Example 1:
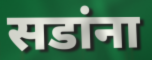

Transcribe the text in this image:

सडांना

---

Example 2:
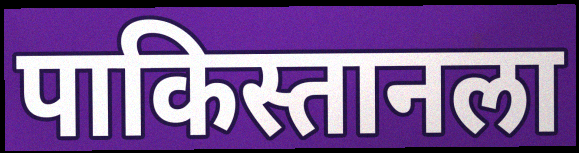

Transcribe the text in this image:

पाकिस्तानला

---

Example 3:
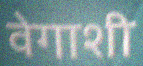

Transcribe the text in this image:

वेगाशी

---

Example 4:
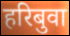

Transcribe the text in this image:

हरिबुवा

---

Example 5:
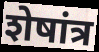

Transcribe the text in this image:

शेषांत्र